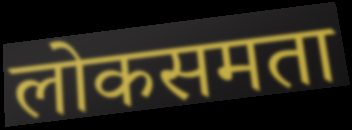
लोकसमता